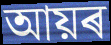
আয়ৰ